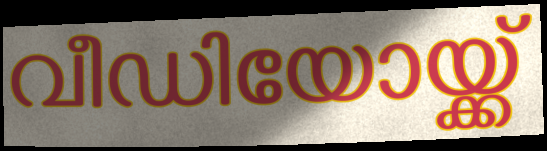
വീഡിയോയ്ക്ക്